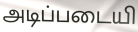
அடிப்படையி